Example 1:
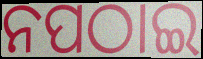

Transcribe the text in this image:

ନପଠାଇ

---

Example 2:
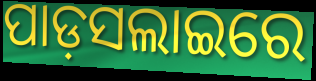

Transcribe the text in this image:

ପାଡ଼ସଲାଇରେ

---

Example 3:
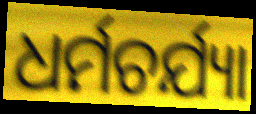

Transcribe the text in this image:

ଧର୍ମଚର୍ଯ୍ୟା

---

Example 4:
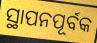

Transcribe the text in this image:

ସ୍ଥାପନପୂର୍ବକ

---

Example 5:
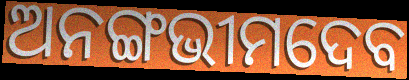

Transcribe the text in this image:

ଅନଙ୍ଗଭୀମଦେବ